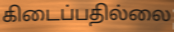
கிடைப்பதில்லை